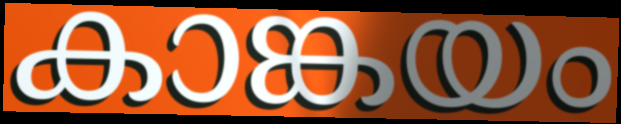
കാങ്കയം